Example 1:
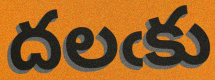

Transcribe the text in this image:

దలఁకు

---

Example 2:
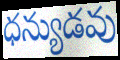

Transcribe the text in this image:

ధన్యుడవు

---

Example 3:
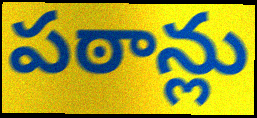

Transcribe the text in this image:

పఠాన్లు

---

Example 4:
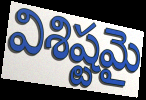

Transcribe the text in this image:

విశిష్టమై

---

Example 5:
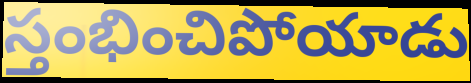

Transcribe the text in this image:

స్తంభించిపోయాడు